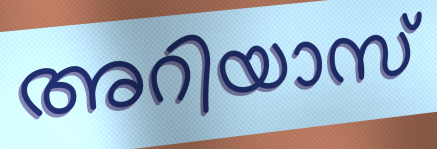
അറിയാസ്